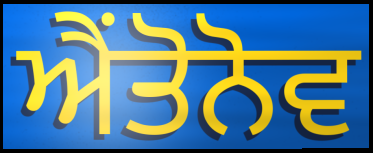
ਐਂਤੋਨੋਵ